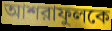
আশরাফুলকে